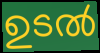
ഉടൽ